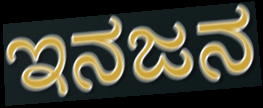
ಇನಜನ